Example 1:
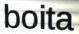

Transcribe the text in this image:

boita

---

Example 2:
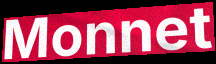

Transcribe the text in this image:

Monnet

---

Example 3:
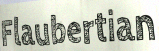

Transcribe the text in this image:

Flaubertian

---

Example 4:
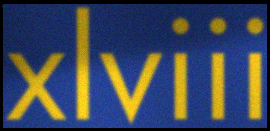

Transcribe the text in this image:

xlviii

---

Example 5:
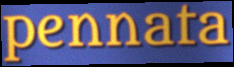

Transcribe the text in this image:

pennata